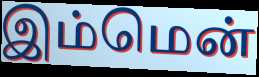
இம்மென்